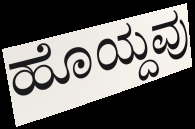
ಹೊಯ್ದವು